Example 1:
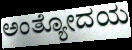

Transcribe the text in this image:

ಅಂತ್ಯೋದಯ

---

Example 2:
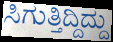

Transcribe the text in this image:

ಸಿಗುತ್ತಿದ್ದಿದ್ದು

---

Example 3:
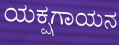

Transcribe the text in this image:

ಯಕ್ಷಗಾಯನ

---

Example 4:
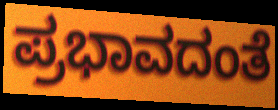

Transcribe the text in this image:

ಪ್ರಭಾವದಂತೆ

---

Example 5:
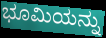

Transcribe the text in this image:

ಭೂಮಿಯನ್ನು